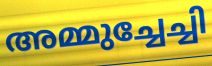
അമ്മുച്ചേച്ചി